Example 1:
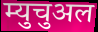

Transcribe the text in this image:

म्युचुअल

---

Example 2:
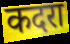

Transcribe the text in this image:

कदरा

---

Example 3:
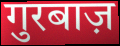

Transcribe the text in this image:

गुरबाज़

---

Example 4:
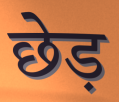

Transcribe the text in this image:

छेड़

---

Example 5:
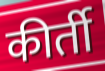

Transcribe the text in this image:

कीर्ती